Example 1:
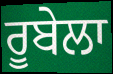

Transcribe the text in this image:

ਰੂਬੇਲਾ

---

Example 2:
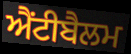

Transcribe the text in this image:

ਐਂਟੀਬੈਲਮ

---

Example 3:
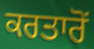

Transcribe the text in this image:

ਕਰਤਾਰੋਂ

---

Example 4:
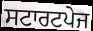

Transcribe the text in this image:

ਸਟਾਰਟਪੇਜ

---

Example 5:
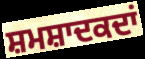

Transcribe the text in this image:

ਸ਼ਮਸ਼ਾਦਕਦਾਂ